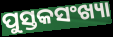
ପୁସ୍ତକସଂଖ୍ୟା